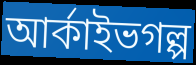
আর্কাইভগল্প